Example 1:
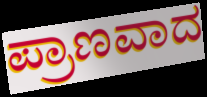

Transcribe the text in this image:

ಪ್ರಾಣವಾದ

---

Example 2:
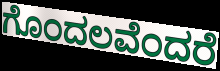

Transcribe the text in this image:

ಗೊಂದಲವೆಂದರೆ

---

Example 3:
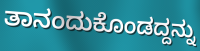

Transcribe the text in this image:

ತಾನಂದುಕೊಂಡದ್ದನ್ನು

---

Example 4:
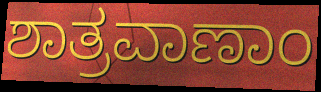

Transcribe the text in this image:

ಶಾತ್ರವಾಣಾಂ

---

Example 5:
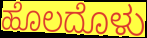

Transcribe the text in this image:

ಹೊಲದೊಳು